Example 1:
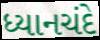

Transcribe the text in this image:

ધ્યાનચંદે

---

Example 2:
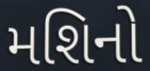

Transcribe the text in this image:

મશિનો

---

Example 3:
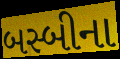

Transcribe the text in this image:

બસ્બીના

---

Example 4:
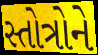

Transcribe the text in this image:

સ્તોત્રોને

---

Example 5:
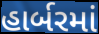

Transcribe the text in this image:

હાર્બરમાં